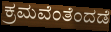
ಕ್ರಮವೆಂತೆಂದಡೆ